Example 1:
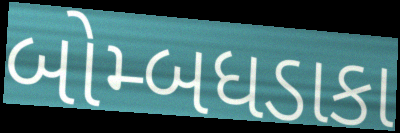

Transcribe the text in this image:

બોમ્બધડાકા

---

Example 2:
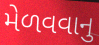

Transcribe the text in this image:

મેળવવાનુ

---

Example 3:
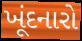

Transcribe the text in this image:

ખૂંદનારો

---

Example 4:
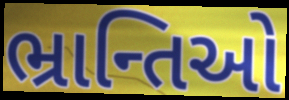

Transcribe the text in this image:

ભ્રાન્તિઓ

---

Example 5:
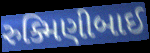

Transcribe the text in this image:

રુક્મિણીબાઈ